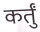
कर्तुं